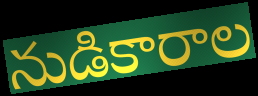
నుడికారాల